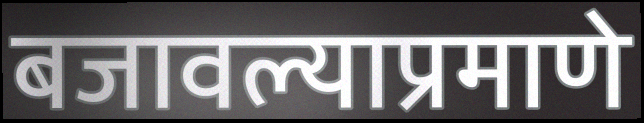
बजावल्याप्रमाणे